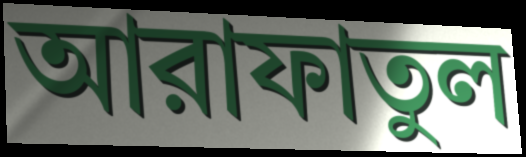
আরাফাতুল